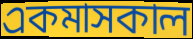
একমাসকাল